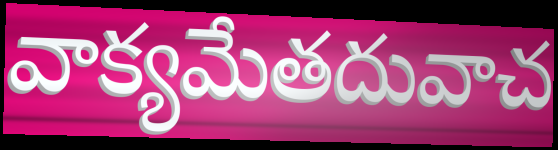
వాక్యమేతదువాచ